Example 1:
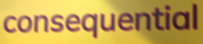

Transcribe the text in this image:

consequential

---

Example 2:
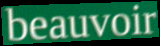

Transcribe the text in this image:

beauvoir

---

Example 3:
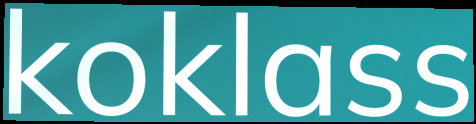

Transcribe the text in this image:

koklass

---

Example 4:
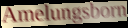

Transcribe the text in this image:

Amelungsborn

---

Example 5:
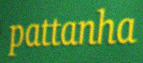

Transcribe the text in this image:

pattanha